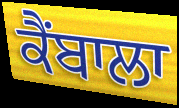
ਕੈਂਬਾਲਾ